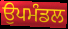
ਉਪਮੰਡਲ